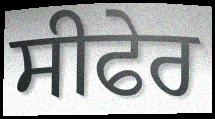
ਸੀਫੇਰ